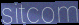
sitcom